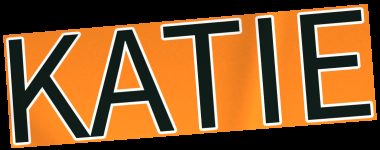
KATIE